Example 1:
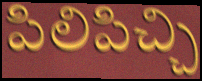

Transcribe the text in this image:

పిలిపిచ్చి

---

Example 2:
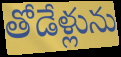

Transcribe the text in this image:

తోడేళ్లును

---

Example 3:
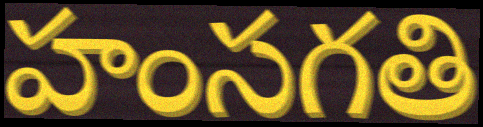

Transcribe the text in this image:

హంసగతి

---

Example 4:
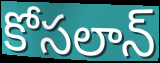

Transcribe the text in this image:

కోసలాన్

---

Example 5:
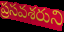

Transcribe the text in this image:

ప్రసవశరుని